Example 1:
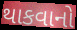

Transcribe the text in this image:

થાકવાનો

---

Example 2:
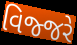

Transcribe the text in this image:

વિજ્જરે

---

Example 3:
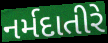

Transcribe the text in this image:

નર્મદાતીરે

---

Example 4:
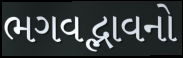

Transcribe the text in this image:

ભગવદ્ભાવનો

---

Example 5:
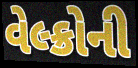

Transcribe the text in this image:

વેલ્ક્રોની